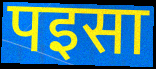
पइसा